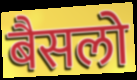
बैसलो